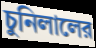
চুনিলালের